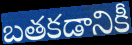
బతకడానికీ